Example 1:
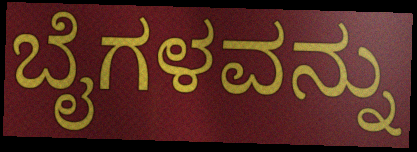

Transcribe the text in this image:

ಬೈಗಳವನ್ನು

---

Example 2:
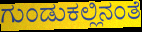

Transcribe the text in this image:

ಗುಂಡುಕಲ್ಲಿನಂತೆ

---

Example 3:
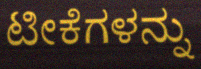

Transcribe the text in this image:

ಟೀಕೆಗಳನ್ನು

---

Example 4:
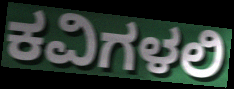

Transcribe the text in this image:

ಕವಿಗಳಲಿ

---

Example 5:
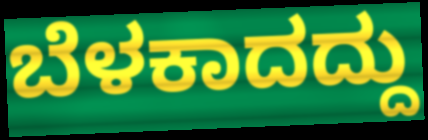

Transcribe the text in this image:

ಬೆಳಕಾದದ್ದು